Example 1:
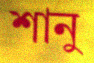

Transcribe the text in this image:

শানু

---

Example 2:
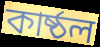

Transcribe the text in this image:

কাষ্ঠল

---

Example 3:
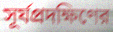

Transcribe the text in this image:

সূর্যপ্রদক্ষিণের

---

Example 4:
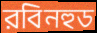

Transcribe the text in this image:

রবিনহুড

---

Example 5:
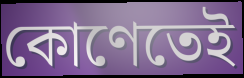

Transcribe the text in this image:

কোণেতেই